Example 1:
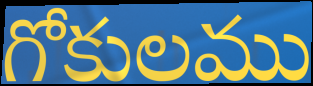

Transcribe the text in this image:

గోకులము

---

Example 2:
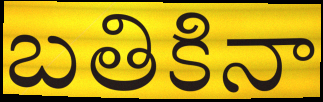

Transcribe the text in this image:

బతికినా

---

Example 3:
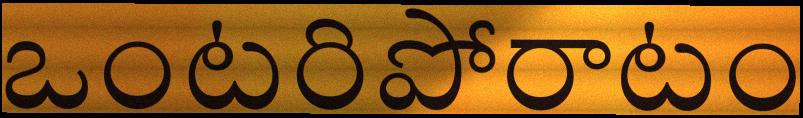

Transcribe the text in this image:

ఒంటరిపోరాటం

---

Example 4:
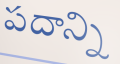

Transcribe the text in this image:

పదాన్ని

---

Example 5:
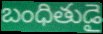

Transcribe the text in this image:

బంధితుడై